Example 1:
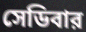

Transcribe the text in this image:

সেডিবার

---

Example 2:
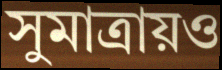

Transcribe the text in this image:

সুমাত্রায়ও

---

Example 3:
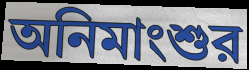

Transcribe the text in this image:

অনিমাংশুর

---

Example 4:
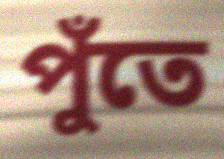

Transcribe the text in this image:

পুঁতে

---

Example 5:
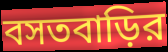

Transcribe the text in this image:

বসতবাড়ির